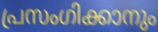
പ്രസംഗിക്കാനും